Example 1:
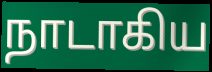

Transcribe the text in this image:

நாடாகிய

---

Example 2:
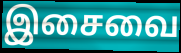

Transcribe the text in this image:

இசைவை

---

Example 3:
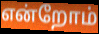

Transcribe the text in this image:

என்றோம்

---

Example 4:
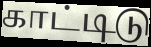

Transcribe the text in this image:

காட்டிடு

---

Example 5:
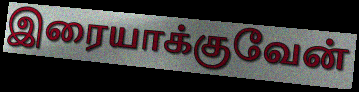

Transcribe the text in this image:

இரையாக்குவேன்